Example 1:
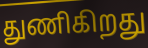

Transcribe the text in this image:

துணிகிறது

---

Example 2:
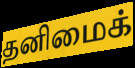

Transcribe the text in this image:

தனிமைக்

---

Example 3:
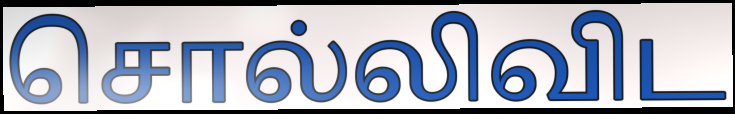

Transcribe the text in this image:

சொல்லிவிட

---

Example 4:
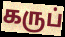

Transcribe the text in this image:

கருப்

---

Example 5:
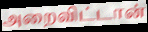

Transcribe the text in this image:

அறைவிட்டான்